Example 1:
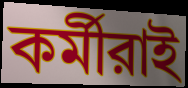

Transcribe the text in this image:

কর্মীরাই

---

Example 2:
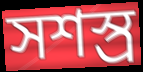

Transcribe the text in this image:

সশস্ত্র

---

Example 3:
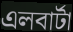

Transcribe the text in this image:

এলবার্টা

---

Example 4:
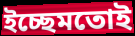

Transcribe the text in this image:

ইচ্ছেমতোই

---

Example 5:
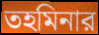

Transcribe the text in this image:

তহমিনার